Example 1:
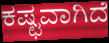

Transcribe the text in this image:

ಕಷ್ಟವಾಗಿದೆ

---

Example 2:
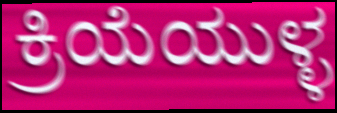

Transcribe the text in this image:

ಕ್ರಿಯೆಯುಳ್ಳ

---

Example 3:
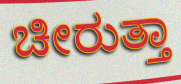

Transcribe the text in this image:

ಚೀರುತ್ತಾ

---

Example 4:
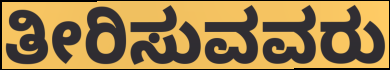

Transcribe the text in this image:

ತೀರಿಸುವವರು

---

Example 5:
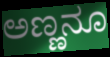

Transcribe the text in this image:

ಅಣ್ಣನೂ